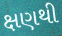
ક્ષણથી